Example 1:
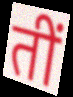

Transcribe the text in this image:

तीं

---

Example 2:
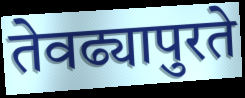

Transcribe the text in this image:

तेवढ्यापुरते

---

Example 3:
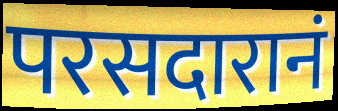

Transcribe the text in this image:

परसदारानं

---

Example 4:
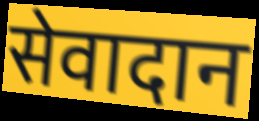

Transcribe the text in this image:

सेवादान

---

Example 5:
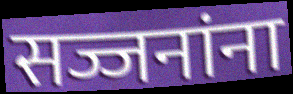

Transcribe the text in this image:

सज्जनांना